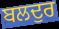
ਬਲਦੁਰ